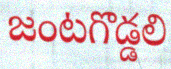
జంటగొడ్డలి